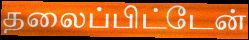
தலைப்பிட்டேன்